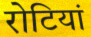
रोटियां